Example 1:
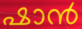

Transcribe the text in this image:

ഷാൻ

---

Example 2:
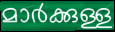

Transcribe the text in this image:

മാർക്കുള്ള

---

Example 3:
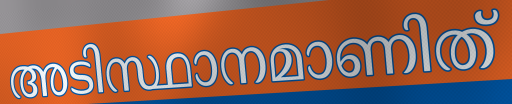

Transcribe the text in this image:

അടിസ്ഥാനമാണിത്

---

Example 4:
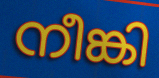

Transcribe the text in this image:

നീങ്കി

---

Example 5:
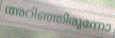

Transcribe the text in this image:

അറിഞ്ഞിരുന്നോ